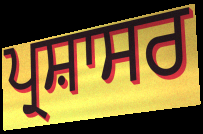
ਪ੍ਰਸ਼ਾਸਰ